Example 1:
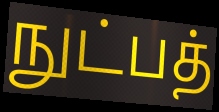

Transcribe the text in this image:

நுட்பத்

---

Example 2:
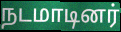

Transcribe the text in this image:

நடமாடினர்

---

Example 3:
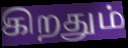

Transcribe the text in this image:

கிறதும்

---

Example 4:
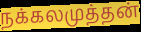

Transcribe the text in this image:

நக்கலமுத்தன்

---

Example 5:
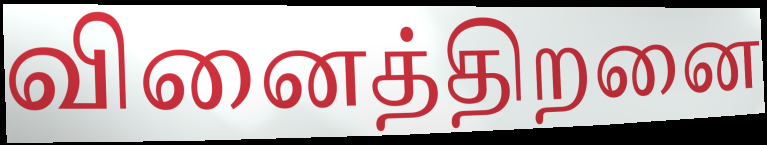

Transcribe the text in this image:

வினைத்திறனை